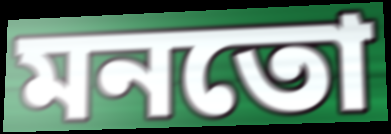
মনতো